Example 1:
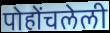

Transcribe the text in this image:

पोहोंचलेली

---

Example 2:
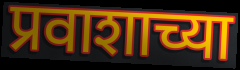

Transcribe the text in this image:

प्रवाशाच्या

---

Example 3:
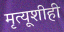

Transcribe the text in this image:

मृत्यूशीही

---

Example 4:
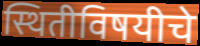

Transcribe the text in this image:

स्थितीविषयीचे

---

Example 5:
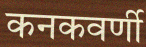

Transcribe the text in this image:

कनकवर्णी